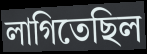
লাগিতেছিল